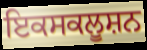
ਇਕਸਕਲੂਸ਼ਨ